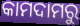
କାମଦାମରୁ